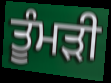
ਤੂੰਮੜੀ